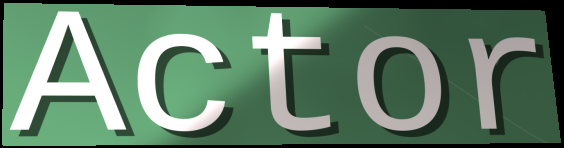
Actor